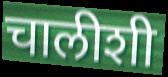
चालीशी